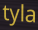
tyla